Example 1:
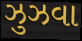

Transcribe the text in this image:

ઝુઝવા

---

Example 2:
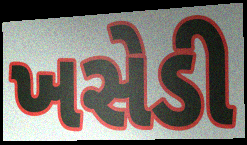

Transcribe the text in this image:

ખસેડી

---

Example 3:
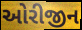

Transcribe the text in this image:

ઓરીજીન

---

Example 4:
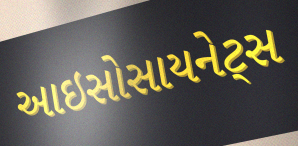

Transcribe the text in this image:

આઇસોસાયનેટ્સ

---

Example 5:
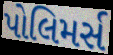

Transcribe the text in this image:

પોલિમર્સ